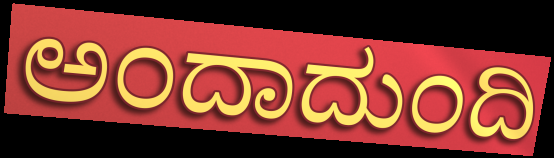
ಅಂದಾದುಂದಿ